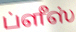
ப்ளீஸ்